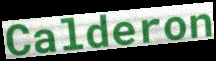
Calderon